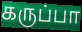
கருப்பா